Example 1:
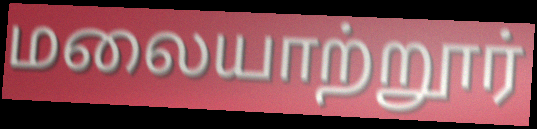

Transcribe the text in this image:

மலையாற்றூர்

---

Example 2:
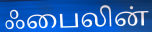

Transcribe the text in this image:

ஃபைலின்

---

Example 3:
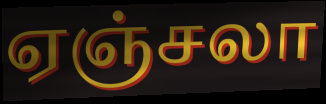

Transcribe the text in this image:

ஏஞ்சலா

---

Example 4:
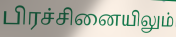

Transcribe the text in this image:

பிரச்சினையிலும்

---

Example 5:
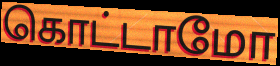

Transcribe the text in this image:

கொட்டாமோ